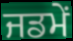
ਜਡਮੇਂ